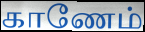
காணேம்